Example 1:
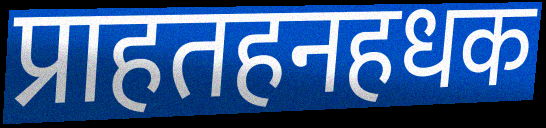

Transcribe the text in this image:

प्राहतहनहधक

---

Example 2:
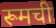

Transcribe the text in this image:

रूमची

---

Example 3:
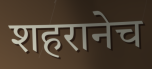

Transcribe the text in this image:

शहरानेच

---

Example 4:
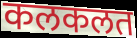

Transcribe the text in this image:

कलकलत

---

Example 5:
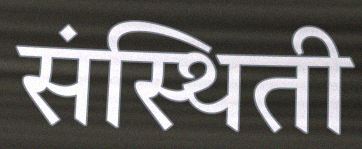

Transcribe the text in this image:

संस्थिती